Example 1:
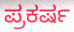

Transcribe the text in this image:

ಪ್ರಕರ್ಷ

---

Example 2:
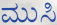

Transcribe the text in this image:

ಮುಸಿ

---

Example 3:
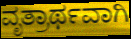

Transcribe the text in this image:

ವೃತ್ರಾರ್ಥವಾಗಿ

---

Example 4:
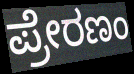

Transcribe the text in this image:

ಪ್ರೇರಣಂ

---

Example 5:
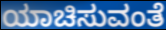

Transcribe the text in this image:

ಯಾಚಿಸುವಂತೆ